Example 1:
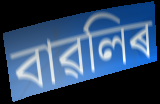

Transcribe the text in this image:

বাৱলিৰ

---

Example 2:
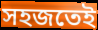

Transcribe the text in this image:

সহজতেই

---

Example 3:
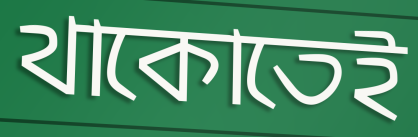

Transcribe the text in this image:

থাকোতেই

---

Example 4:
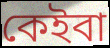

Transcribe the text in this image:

কেইবা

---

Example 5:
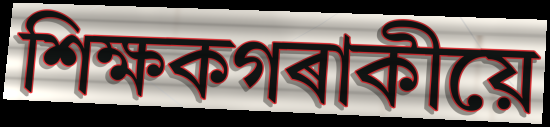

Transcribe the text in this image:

শিক্ষকগৰাকীয়ে